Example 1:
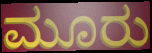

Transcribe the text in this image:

ಮೂರು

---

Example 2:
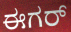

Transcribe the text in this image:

ಈಗರ್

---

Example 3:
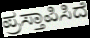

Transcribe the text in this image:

ಪ್ರಸ್ತಾಪಿಸಿದೆ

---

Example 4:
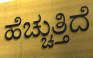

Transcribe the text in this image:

ಹೆಚ್ಚುತ್ತಿದೆ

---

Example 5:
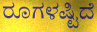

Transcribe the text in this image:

ರೂಗಳಷ್ಟಿದೆ